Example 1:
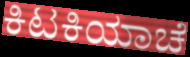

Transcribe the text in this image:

ಕಿಟಕಿಯಾಚೆ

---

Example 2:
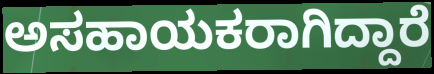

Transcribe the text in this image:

ಅಸಹಾಯಕರಾಗಿದ್ದಾರೆ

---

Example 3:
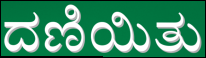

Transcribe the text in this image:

ದಣಿಯಿತು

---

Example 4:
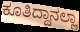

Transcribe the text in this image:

ಕೂತಿದ್ದಾನಲ್ಲಾ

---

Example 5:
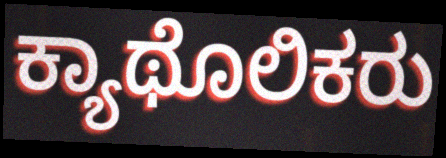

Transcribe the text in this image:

ಕ್ಯಾಥೊಲಿಕರು